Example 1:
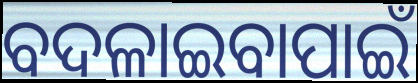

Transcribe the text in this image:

ବଦଳାଇବାପାଇଁ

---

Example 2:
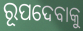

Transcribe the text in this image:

ରୂପଦେବାକୁ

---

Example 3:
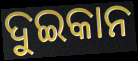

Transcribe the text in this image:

ଦୁଇକାନ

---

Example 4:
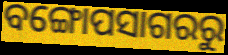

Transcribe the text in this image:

ବଙ୍ଗୋପସାଗରରୁ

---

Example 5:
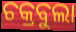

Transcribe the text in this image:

ଚକ୍ରବୁଲା